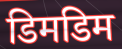
डिमडिम